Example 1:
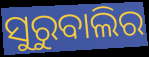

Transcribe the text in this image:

ସୁରୁବାଲିର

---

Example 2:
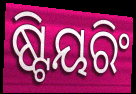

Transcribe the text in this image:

ଷ୍ଟିୟରିଂ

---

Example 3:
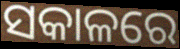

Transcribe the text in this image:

ସକାଳରେ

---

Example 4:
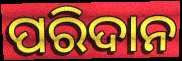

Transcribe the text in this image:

ପରିଦାନ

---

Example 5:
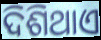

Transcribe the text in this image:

ଦିଶିଥାଏ